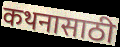
कथनासाठी